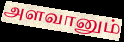
அளவானும்